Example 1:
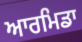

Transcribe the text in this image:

ਆਰਮਿਡਾ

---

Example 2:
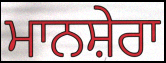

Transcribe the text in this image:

ਮਾਨਸ਼ੇਰਾ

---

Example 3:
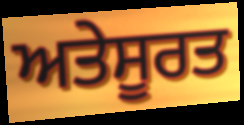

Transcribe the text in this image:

ਅਤੇਸੂਰਤ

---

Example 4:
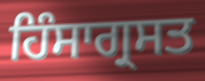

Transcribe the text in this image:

ਹਿੰਸਾਗ੍ਰਸਤ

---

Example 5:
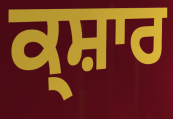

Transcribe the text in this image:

ਕ੍ਸ਼ਾਰ